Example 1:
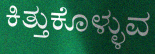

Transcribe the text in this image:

ಕಿತ್ತುಕೊಳ್ಳುವ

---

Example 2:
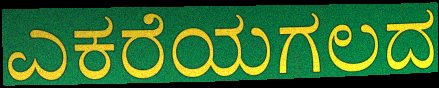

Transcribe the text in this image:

ಎಕರೆಯಗಲದ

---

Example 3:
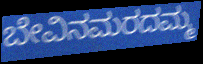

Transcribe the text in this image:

ಬೇವಿನಮರದಮ್ಮ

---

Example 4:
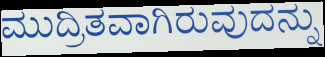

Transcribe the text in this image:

ಮುದ್ರಿತವಾಗಿರುವುದನ್ನು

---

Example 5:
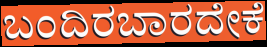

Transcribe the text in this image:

ಬಂದಿರಬಾರದೇಕೆ